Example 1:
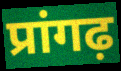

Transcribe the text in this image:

प्रांगढ़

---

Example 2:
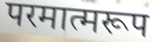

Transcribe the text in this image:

परमात्मरूप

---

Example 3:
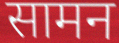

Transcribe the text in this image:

सामन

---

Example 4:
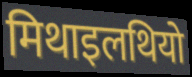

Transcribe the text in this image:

मिथाइलथियो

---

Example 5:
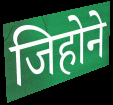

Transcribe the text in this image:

जिहोने